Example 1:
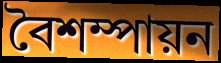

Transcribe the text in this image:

বৈশম্পায়ন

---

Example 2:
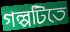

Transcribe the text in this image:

গল্পটিতে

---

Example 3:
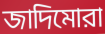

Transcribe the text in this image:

জাদিমোরা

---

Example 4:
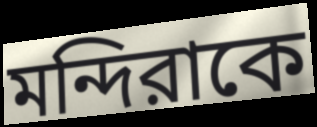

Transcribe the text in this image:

মন্দিরাকে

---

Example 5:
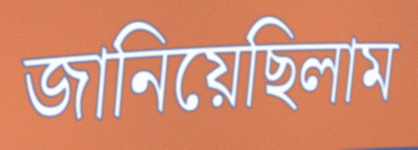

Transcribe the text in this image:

জানিয়েছিলাম